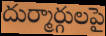
దుర్మార్గులపై